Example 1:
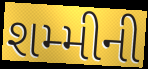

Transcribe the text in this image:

શમ્મીની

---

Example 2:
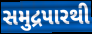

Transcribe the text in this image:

સમુદ્રપારથી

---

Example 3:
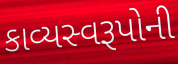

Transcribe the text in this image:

કાવ્યસ્વરૂપોની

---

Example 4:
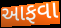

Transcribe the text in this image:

આફવા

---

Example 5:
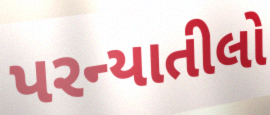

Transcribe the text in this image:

પરન્યાતીલો